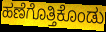
ಹಣೆಗೊತ್ತಿಕೊಂಡು